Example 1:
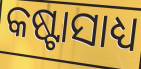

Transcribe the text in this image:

କଷ୍ଟାସାଧ୍ୟ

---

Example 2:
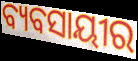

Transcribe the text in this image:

ବ୍ୟବସାୟୀର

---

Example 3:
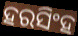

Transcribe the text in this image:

ହରସିଂହ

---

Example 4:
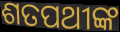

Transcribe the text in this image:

ଶତପଥୀଙ୍କ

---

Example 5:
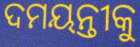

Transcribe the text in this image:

ଦମୟନ୍ତୀକୁ